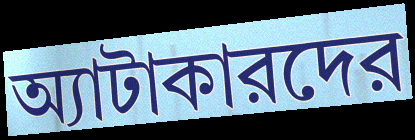
অ্যাটাকারদের